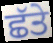
ਛੱਤੇ